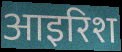
आइरिश